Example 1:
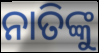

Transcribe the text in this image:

ନାତିଙ୍କୁ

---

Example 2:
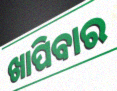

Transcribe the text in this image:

ଖାପିବାର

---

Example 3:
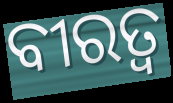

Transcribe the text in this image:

ବୀରତ୍ଵ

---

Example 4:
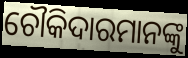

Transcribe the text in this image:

ଚୌକିଦାରମାନଙ୍କୁ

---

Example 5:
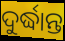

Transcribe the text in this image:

ଦୁର୍ଦ୍ଧାନ୍ତ